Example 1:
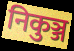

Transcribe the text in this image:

निकुञ्ज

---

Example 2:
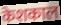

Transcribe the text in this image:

केशकाल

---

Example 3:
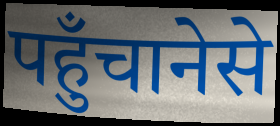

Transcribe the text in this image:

पहुँचानेसे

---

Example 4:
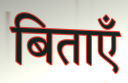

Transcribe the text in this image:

बिताएँ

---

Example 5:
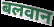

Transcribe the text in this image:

बलवान